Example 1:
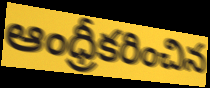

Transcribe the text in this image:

ఆంధ్రీకరించిన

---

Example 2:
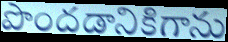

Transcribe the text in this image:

పొందడానికిగాను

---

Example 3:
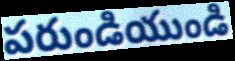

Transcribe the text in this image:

పరుండియుండి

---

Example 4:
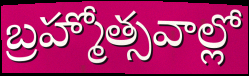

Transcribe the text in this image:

బ్రహ్మోత్సవాల్లో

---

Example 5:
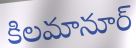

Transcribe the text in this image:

కిలమానూర్